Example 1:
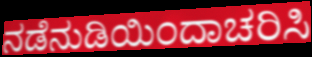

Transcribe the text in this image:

ನಡೆನುಡಿಯಿಂದಾಚರಿಸಿ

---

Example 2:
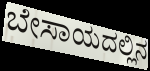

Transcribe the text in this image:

ಬೇಸಾಯದಲ್ಲಿನ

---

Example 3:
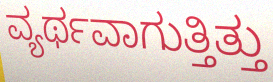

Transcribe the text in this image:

ವ್ಯರ್ಥವಾಗುತ್ತಿತ್ತು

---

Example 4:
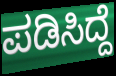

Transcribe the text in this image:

ಪಡಿಸಿದ್ದೆ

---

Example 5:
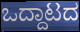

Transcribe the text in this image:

ಒದ್ದಾಟದ